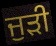
ਜੁੜੀ